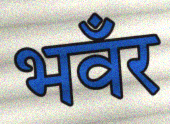
भवँर